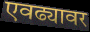
एवढ्यावर